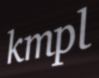
kmpl